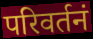
परिवर्तनं